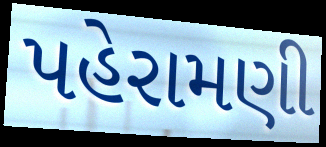
પહેરામણી